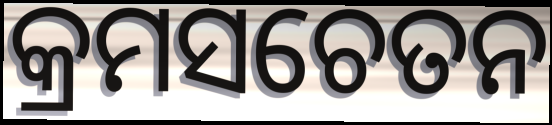
କ୍ରମସଚେତନ